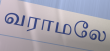
வராமலே